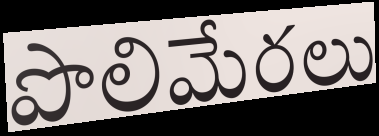
పొలిమేరలు